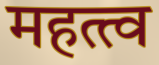
महत्‍त्‍व